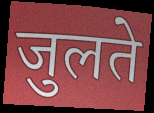
जुलते